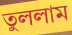
তুললাম